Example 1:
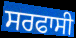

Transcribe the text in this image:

ਸਰਫਾਸੀ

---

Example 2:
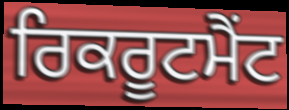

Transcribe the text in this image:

ਰਿਕਰੂਟਮੈਂਟ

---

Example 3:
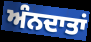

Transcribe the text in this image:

ਅੰਨਦਾਤਾਂ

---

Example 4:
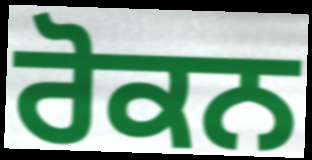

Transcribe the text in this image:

ਰੋਕਨ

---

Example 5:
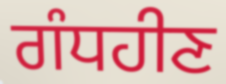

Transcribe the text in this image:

ਗੰਧਹੀਣ